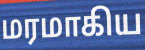
மரமாகிய